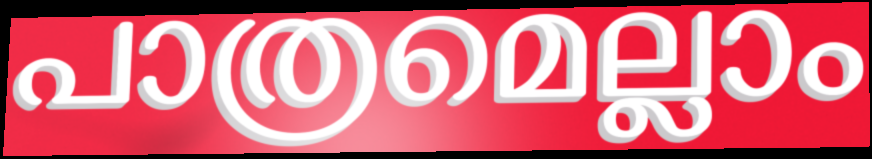
പാത്രമെല്ലാം